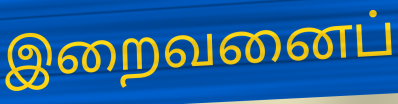
இறைவனைப்